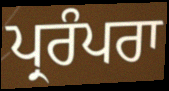
ਪ੍ਰਰੰਪਰਾ